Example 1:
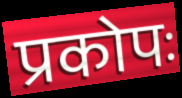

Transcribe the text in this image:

प्रकोपः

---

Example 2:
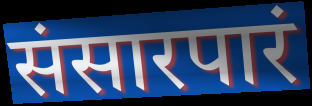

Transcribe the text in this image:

संसारपारं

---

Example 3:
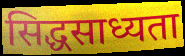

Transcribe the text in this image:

सिद्धसाध्यता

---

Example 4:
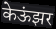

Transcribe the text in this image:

केऊंझर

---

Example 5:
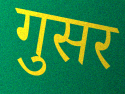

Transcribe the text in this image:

गुसर